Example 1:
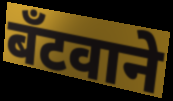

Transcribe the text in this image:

बँटवाने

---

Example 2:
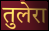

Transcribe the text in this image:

तुलेरा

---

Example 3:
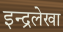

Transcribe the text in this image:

इन्द्रलेखा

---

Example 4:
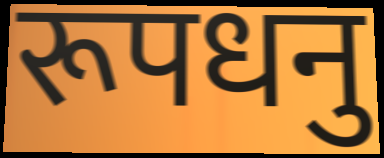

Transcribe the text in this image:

रूपधनु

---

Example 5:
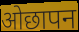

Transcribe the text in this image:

ओछापन